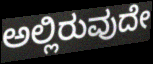
ಅಲ್ಲಿರುವುದೇ